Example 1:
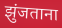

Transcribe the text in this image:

झुंजताना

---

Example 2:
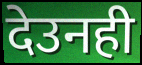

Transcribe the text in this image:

देउनही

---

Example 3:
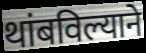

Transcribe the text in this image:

थांबविल्याने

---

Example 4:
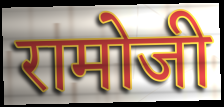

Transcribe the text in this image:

रामोजी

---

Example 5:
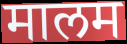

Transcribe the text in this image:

मालम